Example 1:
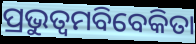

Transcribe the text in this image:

ପ୍ରଭୁତ୍ୱମବିବେକିତା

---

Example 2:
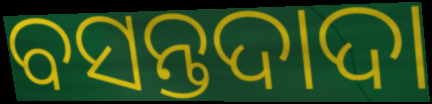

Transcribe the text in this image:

ବସନ୍ତଦାଦା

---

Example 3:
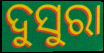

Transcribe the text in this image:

ଦୁସୁରା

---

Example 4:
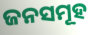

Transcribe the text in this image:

ଜନସମୂହ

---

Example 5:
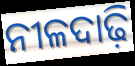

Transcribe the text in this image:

ନୀଳଦାଢ଼ି